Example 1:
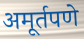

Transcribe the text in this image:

अमूर्तपणे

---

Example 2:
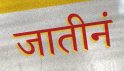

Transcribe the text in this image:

जातीनं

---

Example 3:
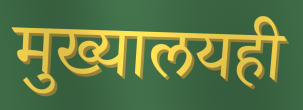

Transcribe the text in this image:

मुख्यालयही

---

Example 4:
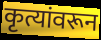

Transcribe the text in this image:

कृत्यांवरून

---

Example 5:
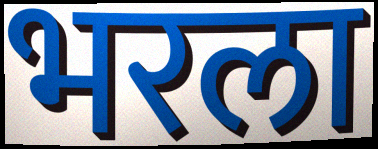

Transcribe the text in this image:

भरला